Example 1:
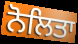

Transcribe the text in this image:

ਨੋਲਿਤਾ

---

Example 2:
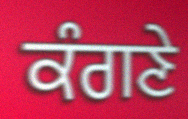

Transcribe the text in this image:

ਕੰਗਣੇ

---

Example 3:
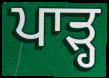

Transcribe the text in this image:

ਪਾੜ੍ਹ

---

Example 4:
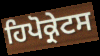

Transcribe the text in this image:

ਹਿਪੋਕ੍ਰੇਟਸ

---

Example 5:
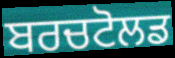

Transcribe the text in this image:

ਬਰਚਟੋਲਡ